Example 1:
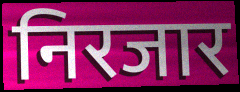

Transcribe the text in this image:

निरजार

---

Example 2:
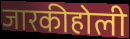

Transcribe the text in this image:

जारकीहोली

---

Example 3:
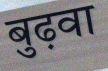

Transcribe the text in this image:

बुढ़वा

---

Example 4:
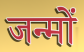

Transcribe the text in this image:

जन्मों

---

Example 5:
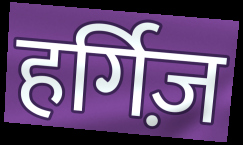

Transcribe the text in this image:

हर्गिज़